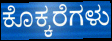
ಕೊಕ್ಕರೆಗಳು